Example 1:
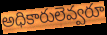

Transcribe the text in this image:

అధికారులెవ్వరూ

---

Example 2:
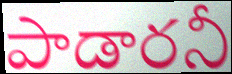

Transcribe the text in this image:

పాడారనీ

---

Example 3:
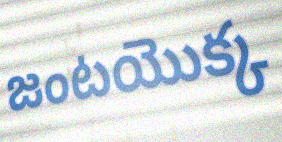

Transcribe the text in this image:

జంటయొక్క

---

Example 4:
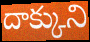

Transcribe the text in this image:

దాక్కుని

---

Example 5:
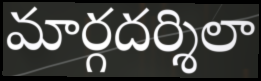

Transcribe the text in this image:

మార్గదర్శిలా